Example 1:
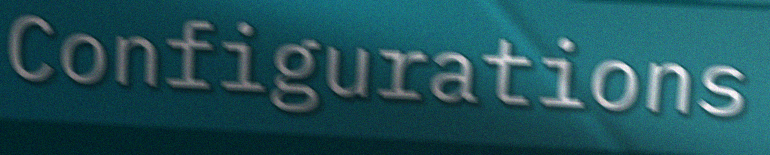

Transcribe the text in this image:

Configurations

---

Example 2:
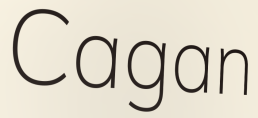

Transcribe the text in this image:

Cagan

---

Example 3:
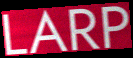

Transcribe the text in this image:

LARP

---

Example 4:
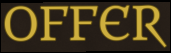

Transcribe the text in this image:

OFFER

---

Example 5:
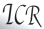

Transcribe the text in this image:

ICR